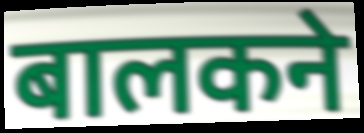
बालकने